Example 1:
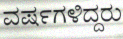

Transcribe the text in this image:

ವರ್ಷಗಳಿದ್ದರು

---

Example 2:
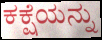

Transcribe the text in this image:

ಕಕ್ಷೆಯನ್ನು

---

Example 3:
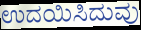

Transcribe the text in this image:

ಉದಯಿಸಿದುವು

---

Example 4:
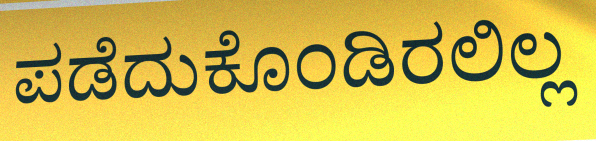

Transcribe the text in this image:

ಪಡೆದುಕೊಂಡಿರಲಿಲ್ಲ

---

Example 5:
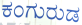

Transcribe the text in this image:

ಕಂಗುರುಡ